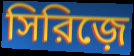
সিরিজ়ে